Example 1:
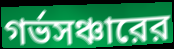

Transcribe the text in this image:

গর্ভসঞ্চারের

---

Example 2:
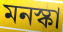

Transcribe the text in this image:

মনস্কা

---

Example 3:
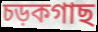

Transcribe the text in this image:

চড়কগাছ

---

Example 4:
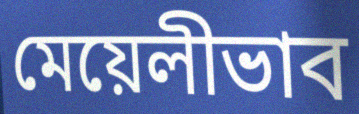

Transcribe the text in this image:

মেয়েলীভাব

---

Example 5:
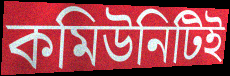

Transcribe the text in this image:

কমিউনিটিই